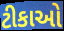
ટીકાઓ